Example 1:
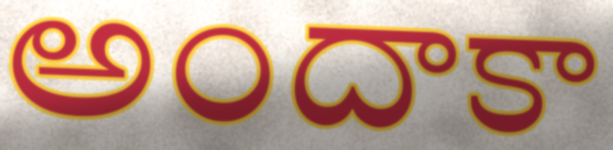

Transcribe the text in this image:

అందాకా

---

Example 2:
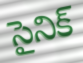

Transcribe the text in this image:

సైనిక్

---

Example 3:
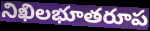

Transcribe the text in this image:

నిఖిలభూతరూప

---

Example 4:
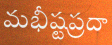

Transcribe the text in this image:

మభీష్టప్రదా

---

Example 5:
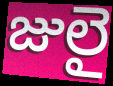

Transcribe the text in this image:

జులై